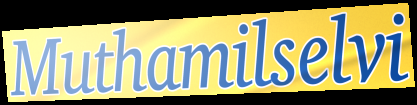
Muthamilselvi